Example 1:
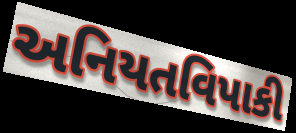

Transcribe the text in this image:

અનિયતવિપાકી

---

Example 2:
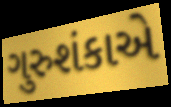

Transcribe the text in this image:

ગુરુશંકાએ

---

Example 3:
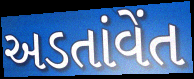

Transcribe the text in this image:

અડતાંવેંત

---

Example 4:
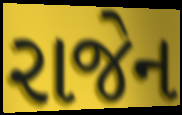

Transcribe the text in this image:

રાજેન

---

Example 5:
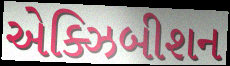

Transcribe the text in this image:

એક્ઝિબીશન